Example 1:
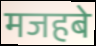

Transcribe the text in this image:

मजहबे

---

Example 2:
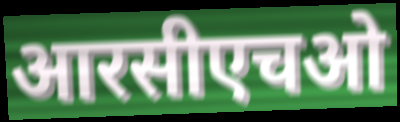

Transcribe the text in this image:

आरसीएचओ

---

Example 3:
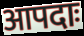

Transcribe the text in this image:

आपदाः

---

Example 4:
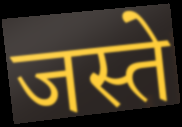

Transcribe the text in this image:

जस्ते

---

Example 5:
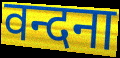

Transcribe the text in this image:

वन्दना